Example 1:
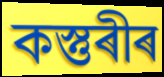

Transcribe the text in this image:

কস্তুৰীৰ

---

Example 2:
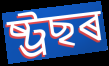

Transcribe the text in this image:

ষ্ট্ৰছৰ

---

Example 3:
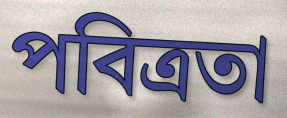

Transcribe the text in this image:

পবিত্ৰতা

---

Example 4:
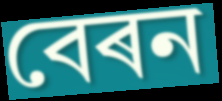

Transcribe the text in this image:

বেৰন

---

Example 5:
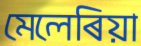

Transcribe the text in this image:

মেলেৰিয়া